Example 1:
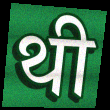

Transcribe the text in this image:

थी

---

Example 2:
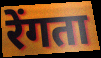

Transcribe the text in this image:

रेंगता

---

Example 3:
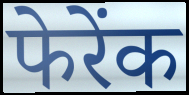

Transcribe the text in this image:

फेरेंक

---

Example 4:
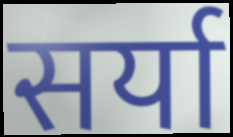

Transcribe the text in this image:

सर्या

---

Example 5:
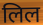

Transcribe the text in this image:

लिल